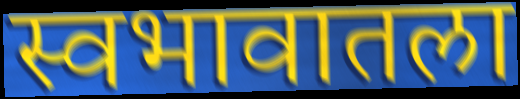
स्वभावातला